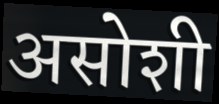
असोशी